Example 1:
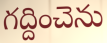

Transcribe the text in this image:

గద్దించెను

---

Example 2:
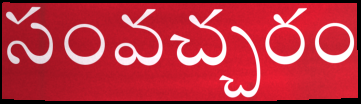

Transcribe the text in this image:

సంవచ్చరం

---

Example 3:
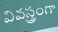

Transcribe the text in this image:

వివస్త్రంగా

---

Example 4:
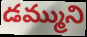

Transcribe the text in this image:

డమ్ముని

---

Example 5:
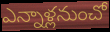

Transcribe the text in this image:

ఎన్నాళ్లనుంచో